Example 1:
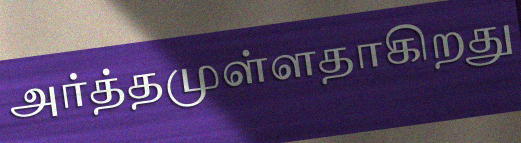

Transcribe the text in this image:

அர்த்தமுள்ளதாகிறது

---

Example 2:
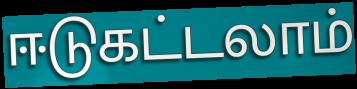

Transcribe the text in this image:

ஈடுகட்டலாம்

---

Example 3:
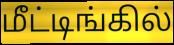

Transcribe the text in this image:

மீட்டிங்கில்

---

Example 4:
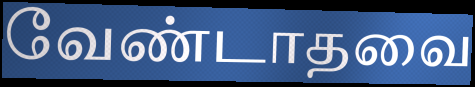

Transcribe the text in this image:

வேண்டாதவை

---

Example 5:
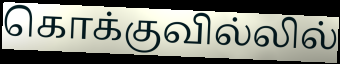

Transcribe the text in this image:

கொக்குவில்லில்